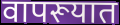
वापरूयात